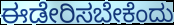
ಈಡೇರಿಸಬೇಕೆಂದು